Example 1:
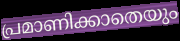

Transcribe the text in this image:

പ്രമാണിക്കാതെയും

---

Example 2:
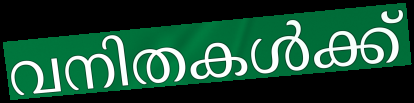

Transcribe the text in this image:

വനിതകൾക്ക്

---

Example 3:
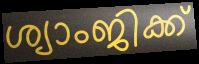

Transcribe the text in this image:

ശ്യാംജിക്ക്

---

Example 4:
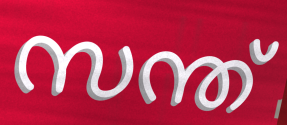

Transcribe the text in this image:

സന്ത്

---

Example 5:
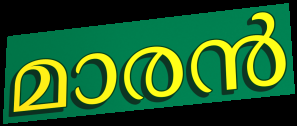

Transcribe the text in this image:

മാരൻ